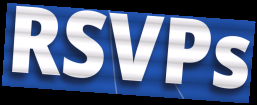
RSVPs